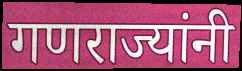
गणराज्यांनी